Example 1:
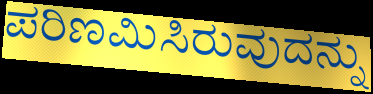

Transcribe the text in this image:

ಪರಿಣಮಿಸಿರುವುದನ್ನು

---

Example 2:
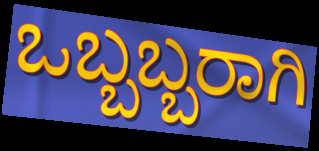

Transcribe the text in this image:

ಒಬ್ಬಬ್ಬರಾಗಿ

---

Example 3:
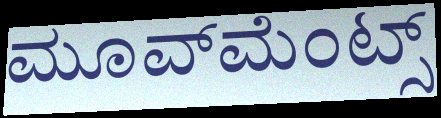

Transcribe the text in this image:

ಮೂವ್‌ಮೆಂಟ್ಸ್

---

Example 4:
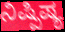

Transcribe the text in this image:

ನಿಷ್ಪಿಷ್ಯ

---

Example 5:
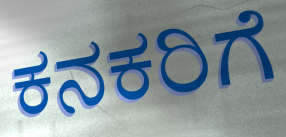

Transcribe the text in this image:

ಕನಕರಿಗೆ